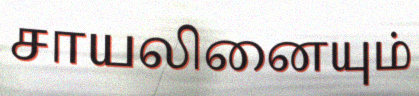
சாயலினையும்